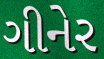
ગીનેર